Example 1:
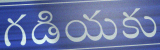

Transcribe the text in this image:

గడియకు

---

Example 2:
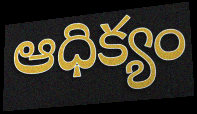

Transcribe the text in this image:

ఆధిక్యం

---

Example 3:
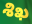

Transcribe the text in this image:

శిఖ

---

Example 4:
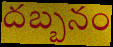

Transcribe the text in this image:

దబ్బనం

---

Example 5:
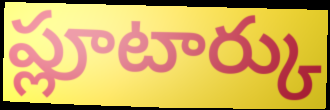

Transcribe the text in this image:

ప్లూటార్కు